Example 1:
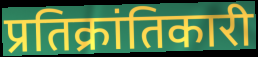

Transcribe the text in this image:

प्रतिक्रांतिकारी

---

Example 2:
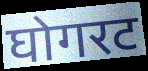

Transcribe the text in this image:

घोगरट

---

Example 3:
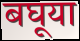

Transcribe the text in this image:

बघूया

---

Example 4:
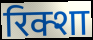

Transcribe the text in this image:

रिक्शा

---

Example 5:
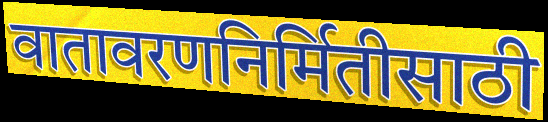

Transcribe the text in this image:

वातावरणनिर्मितीसाठी